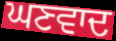
ਘਣਵਾਦ